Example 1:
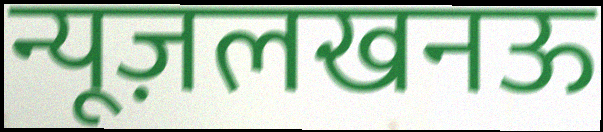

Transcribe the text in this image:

न्यूज़लखनऊ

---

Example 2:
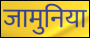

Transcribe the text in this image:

जामुनिया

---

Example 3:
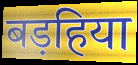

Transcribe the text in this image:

बड़हिया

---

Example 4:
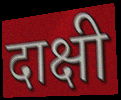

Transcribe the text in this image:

दाक्षी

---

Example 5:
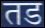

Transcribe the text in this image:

तड